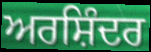
ਅਰਸ਼ਿੰਦਰ